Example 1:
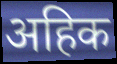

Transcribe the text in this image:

अहिक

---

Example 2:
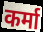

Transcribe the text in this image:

कर्मा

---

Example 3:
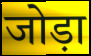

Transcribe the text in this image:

जोड़ा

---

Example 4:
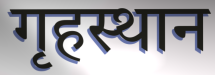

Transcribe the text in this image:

गृहस्थान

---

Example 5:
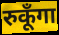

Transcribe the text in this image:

रुकूँगा